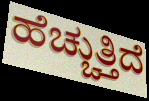
ಹೆಚ್ಚುತ್ತಿದೆ